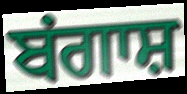
ਬਂਗਾਸ਼